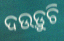
ଦଉଡ଼ୁଚି